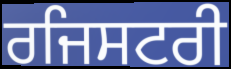
ਰਜਿਸਟਰੀ